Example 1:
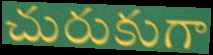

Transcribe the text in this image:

చురుకుగా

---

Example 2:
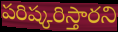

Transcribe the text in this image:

పరిష్కరిస్తారని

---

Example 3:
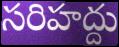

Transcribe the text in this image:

సరిహద్దు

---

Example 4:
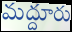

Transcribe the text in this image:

మద్దూరు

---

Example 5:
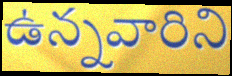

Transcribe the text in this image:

ఉన్నవారిని